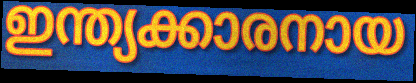
ഇന്ത്യക്കാരനായ